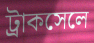
ট্রাকসেলে